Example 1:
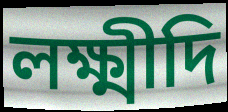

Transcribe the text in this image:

লক্ষ্মীদি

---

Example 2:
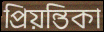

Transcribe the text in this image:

প্রিয়ন্তিকা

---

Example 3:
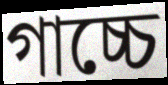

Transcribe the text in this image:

গাচ্চে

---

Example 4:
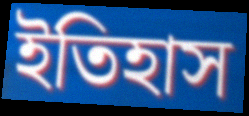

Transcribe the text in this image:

ইতিহাস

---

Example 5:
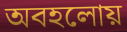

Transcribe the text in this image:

অবহলোয়